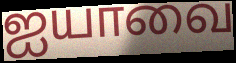
ஐயாவை